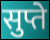
सुप्ते